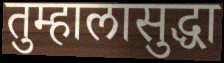
तुम्हालासुद्धा